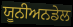
ਯੂਨੀਅਨਡੇਲ